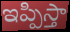
ఇప్పిస్తా